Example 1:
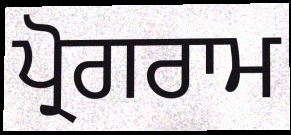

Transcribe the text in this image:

ਪ੍ਰ੍ਰੋਗਰਾਮ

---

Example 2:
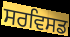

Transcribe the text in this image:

ਸਰਵਿਸਡ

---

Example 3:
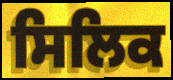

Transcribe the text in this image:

ਸਿਲਿਕ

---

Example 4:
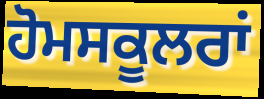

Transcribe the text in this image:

ਹੋਮਸਕੂਲਰਾਂ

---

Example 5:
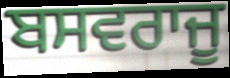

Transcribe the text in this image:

ਬਸਵਰਾਜੂ